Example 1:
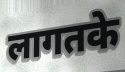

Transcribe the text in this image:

लागतके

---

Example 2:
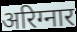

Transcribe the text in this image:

अरिग्नार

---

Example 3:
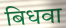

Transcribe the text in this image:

बिधवा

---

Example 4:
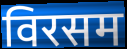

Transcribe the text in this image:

विरसम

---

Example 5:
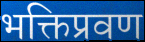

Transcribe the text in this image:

भक्तिप्रवण